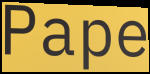
Pape